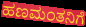
ಹಣಮಂತನಿಗೆ